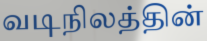
வடிநிலத்தின்